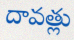
దావత్లు